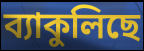
ব্যাকুলিছে